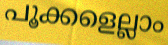
പൂക്കളെല്ലാം